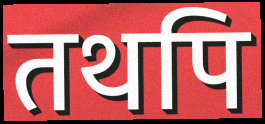
तथपि